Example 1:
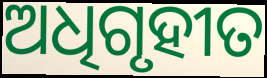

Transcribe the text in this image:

ଅଧିଗୃହୀତ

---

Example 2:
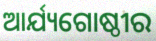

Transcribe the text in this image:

ଆର୍ଯ୍ୟଗୋଷ୍ଠୀର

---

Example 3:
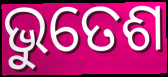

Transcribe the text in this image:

ଭୁତେଶ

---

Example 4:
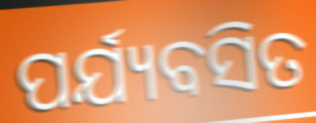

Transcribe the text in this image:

ପର୍ଯ୍ୟବସିତ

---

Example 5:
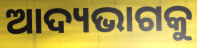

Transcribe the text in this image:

ଆଦ୍ୟଭାଗକୁ